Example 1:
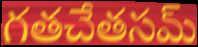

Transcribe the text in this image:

గతచేతసమ్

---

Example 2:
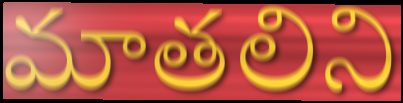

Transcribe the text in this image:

మాతలిని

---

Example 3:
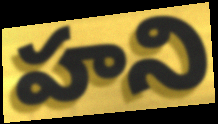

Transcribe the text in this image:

హని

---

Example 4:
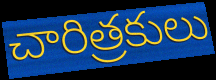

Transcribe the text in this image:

చారిత్రకులు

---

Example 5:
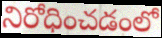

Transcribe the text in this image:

నిరోధించడంలో